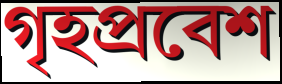
গৃহপ্রবেশ